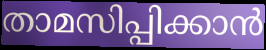
താമസിപ്പിക്കാൻ